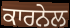
ਕਾਰਨੇਲ